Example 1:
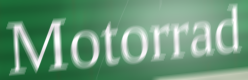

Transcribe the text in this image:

Motorrad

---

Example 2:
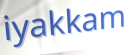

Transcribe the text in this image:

iyakkam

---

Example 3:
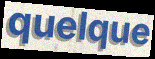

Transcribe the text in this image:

quelque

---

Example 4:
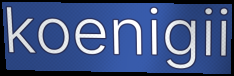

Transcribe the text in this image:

koenigii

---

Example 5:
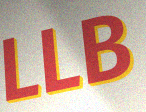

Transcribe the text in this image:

LLB